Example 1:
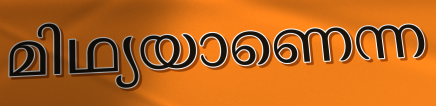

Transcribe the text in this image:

മിഥ്യയാണെന്ന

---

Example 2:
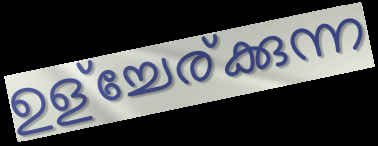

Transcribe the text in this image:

ഉള്ച്ചേര്ക്കുന്ന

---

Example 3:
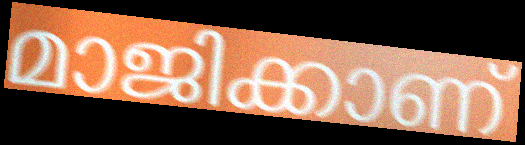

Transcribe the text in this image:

മാജിക്കാണ്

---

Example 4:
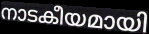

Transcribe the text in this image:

നാടകീയമായി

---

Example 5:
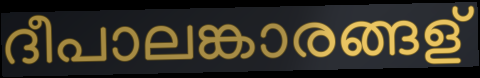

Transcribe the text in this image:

ദീപാലങ്കാരങ്ങള്